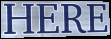
HERE